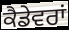
ਕੈਡੇਵਰਾਂ